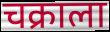
चक्राला